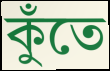
কুঁতে